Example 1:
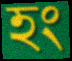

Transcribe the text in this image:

হং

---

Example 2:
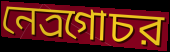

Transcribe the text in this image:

নেত্রগোচর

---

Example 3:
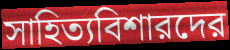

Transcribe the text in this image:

সাহিত্যবিশারদের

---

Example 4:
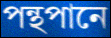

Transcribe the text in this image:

পন্থপানে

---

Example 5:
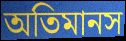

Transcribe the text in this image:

অতিমানস